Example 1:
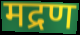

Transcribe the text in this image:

मद्रण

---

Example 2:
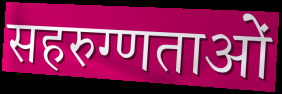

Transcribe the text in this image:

सहरुग्णताओं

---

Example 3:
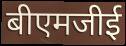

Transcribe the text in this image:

बीएमजीई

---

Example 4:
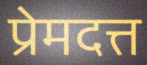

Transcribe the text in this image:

प्रेमदत्त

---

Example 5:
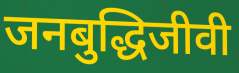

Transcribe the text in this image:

जनबुद्धिजीवी